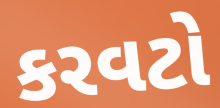
કરવટો